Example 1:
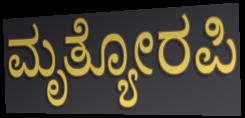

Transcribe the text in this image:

ಮೃತ್ಯೋರಪಿ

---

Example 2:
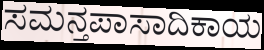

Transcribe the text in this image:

ಸಮನ್ತಪಾಸಾದಿಕಾಯ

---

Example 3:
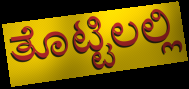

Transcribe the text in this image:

ತೊಟ್ಟಿಲಲ್ಲಿ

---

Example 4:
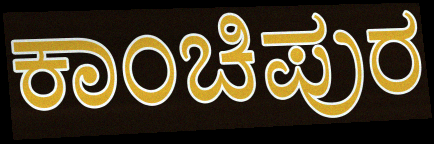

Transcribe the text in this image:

ಕಾಂಚಿಪುರ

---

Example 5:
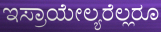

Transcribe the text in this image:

ಇಸ್ರಾಯೇಲ್ಯರೆಲ್ಲರೂ